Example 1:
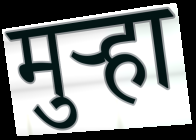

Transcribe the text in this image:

मुऱ्हा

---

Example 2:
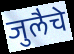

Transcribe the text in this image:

जुलैचे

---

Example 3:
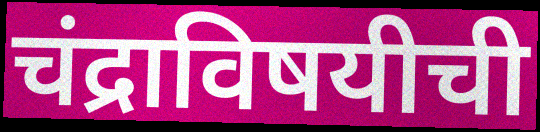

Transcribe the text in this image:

चंद्राविषयीची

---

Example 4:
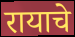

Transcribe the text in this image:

रायाचे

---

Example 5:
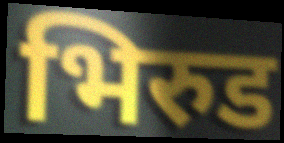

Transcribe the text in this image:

भिरुड